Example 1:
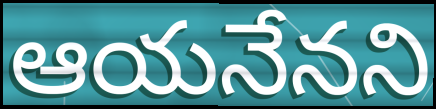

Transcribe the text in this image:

ఆయనేనని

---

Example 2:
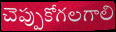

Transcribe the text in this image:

చెప్పుకోగలగాలి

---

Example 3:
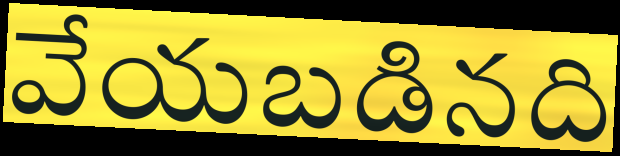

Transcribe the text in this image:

వేయబడినది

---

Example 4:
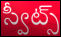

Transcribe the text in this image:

స్వీట్స్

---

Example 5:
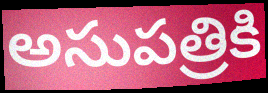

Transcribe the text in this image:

అసుపత్రికి